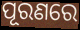
ପୂରଣରେ